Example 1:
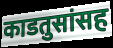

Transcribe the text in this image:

काडतुसांसह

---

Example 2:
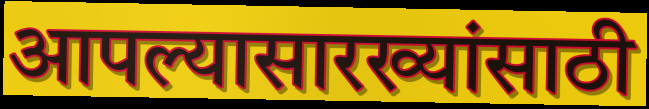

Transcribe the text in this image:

आपल्यासारख्यांसाठी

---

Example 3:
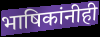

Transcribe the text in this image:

भाषिकांनीही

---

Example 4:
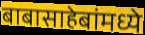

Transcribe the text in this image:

बाबासाहेबांमध्ये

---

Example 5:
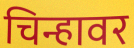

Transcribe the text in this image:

चिन्हावर